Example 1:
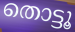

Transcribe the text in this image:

തൊട്ടൂ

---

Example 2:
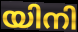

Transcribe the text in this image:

യിനി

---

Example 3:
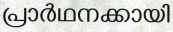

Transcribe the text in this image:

പ്രാർഥനക്കായി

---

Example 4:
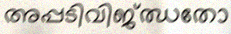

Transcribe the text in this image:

അപ്പടിവിജ്ഝതോ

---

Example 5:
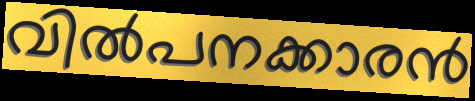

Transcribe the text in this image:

വിൽപനക്കാരൻ